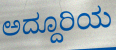
ಅದ್ದೂರಿಯ